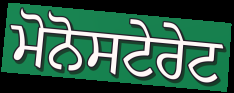
ਮੋਨੋਸਟੇਰੇਟ